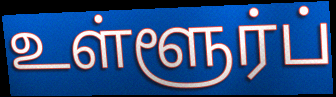
உள்ளூர்ப்